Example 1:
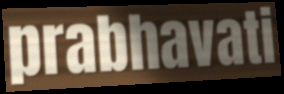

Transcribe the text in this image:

prabhavati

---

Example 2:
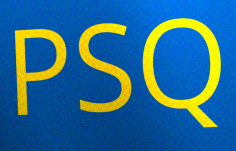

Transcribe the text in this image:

PSQ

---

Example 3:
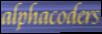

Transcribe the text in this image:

alphacoders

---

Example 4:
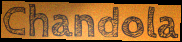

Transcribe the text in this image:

Chandola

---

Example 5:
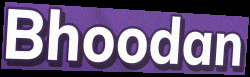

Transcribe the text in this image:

Bhoodan